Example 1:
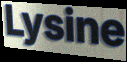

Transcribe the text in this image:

Lysine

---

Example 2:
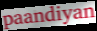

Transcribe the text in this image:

paandiyan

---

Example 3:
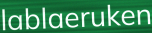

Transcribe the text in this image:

lablaeruken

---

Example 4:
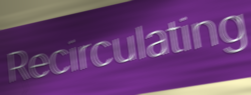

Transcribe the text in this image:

Recirculating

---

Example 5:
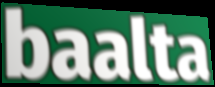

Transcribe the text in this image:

baalta